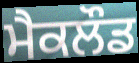
ਮੈਕਲੌਡ